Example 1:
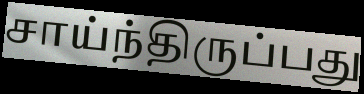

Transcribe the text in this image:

சாய்ந்திருப்பது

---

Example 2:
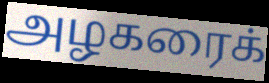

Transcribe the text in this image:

அழகரைக்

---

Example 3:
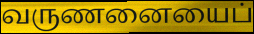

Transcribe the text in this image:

வருணனையைப்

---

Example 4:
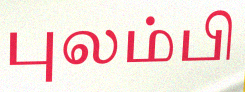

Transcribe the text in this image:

புலம்பி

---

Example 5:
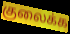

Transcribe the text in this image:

குலைக்க